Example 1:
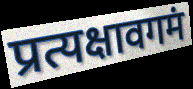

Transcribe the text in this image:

प्रत्यक्षावगमं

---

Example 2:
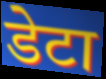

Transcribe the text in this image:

डेटा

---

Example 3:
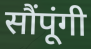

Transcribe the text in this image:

सौंपूंगी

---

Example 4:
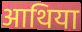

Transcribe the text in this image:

आथिया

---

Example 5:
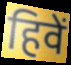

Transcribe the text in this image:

हिवें